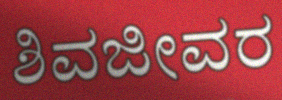
ಶಿವಜೀವರ